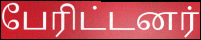
பேரிட்டனர்